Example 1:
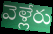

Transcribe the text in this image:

వెళ్లేరు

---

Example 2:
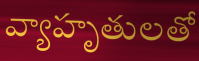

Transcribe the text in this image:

వ్యాహృతులతో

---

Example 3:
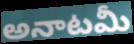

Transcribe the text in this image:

అనాటమీ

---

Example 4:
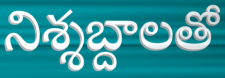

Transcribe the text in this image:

నిశ్శబ్దాలతో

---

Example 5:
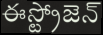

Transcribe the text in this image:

ఈస్ట్రోజెన్